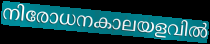
നിരോധനകാലയളവിൽ